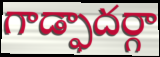
గాడ్ఫాదర్గా